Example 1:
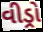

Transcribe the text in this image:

વીડ્રો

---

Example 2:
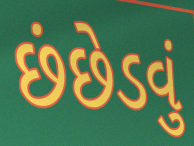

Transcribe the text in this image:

છંછેડવું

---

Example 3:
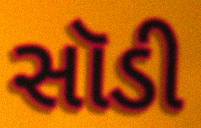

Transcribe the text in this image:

સૉડી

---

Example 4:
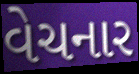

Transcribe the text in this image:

વેચનાર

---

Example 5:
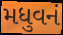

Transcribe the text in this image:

મધુવનં